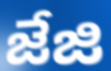
జేజి